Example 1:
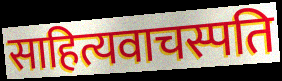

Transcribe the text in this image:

साहित्यवाचस्पति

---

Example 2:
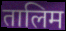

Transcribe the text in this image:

तालिम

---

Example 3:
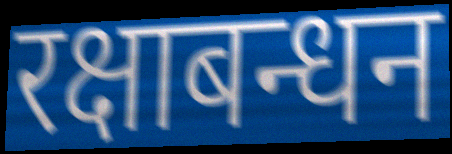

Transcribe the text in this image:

रक्षाबन्धन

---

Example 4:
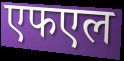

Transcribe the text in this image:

एफएल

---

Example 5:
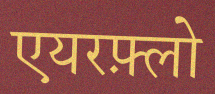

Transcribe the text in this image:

एयरफ़्लो